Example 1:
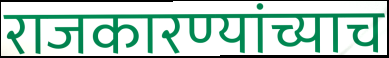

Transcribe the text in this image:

राजकारण्यांच्याच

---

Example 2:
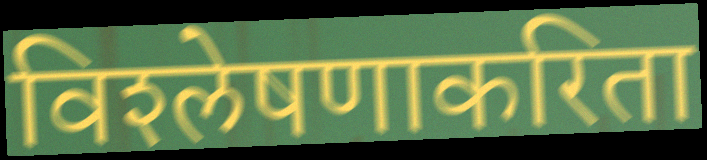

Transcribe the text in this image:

विश्लेषणाकरिता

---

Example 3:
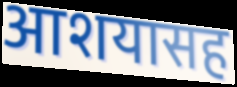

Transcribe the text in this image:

आशयासह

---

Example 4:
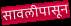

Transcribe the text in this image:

सावलीपासून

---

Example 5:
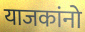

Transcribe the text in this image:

याजकांनो